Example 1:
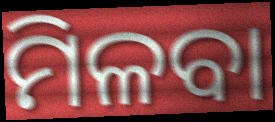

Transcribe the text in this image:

ମିଳବା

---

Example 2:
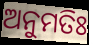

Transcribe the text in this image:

ଅନୁମତିଃ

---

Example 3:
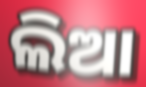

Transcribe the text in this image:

ଲିଆ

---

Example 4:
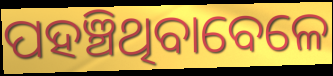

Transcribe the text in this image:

ପହଞ୍ଚିଥିବାବେଳେ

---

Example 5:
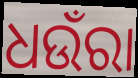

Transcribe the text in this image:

ଧଉଁରା